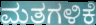
ಮತಗಳಿಕೆ